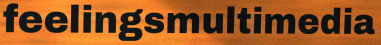
feelingsmultimedia